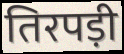
तिरपड़ी